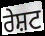
ਰੇਸ਼ਟ